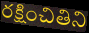
రక్షించితిని